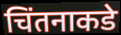
चिंतनाकडे